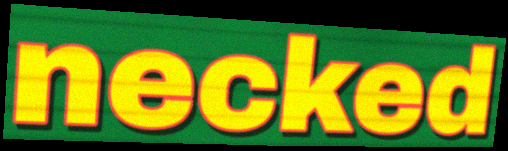
necked